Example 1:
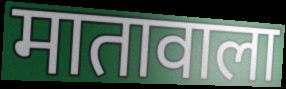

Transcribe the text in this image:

मातावाला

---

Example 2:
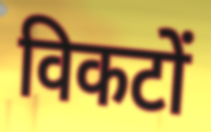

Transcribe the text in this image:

विकटों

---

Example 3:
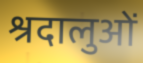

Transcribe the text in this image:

श्रदालुओं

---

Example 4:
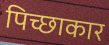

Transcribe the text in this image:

पिच्छाकार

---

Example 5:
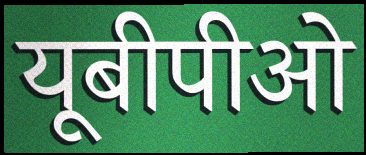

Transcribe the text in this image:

यूबीपीओ